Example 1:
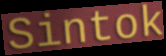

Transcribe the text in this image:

Sintok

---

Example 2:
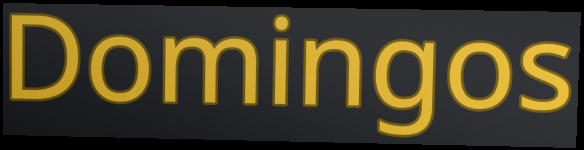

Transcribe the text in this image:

Domingos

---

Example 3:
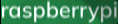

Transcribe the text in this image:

raspberrypi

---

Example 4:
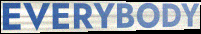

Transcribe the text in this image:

EVERYBODY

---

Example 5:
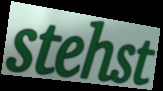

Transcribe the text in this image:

stehst